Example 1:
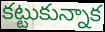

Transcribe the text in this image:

కట్టుకున్నాక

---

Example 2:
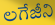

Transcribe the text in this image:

లగేజీని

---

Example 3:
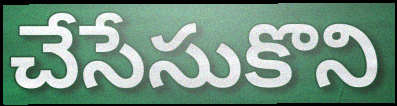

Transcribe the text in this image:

చేసేసుకొని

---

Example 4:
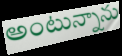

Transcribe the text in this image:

అంటున్నాను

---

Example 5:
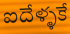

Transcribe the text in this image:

ఐదేళ్ళకే